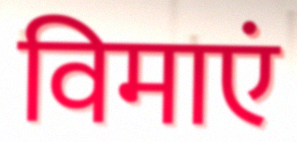
विमाएं